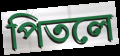
পিতলে